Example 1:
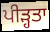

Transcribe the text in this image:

ਪੀੜ੍ਹਤਾ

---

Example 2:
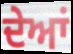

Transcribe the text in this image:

ਦੇਆਂ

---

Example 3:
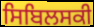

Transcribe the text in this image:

ਸਿਬਿਲਸਕੀ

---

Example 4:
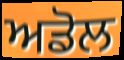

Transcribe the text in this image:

ਅਡੋਲ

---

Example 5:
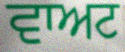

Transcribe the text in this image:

ਵਾਅਟ